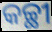
କଚ୍ଛୀ